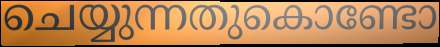
ചെയ്യുന്നതുകൊണ്ടോ